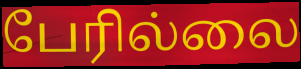
பேரில்லை